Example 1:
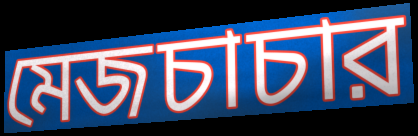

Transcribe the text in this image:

মেজচাচার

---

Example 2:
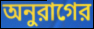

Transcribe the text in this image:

অনুরাগের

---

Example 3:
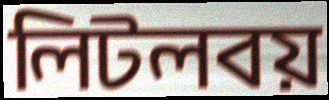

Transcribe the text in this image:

লিটলবয়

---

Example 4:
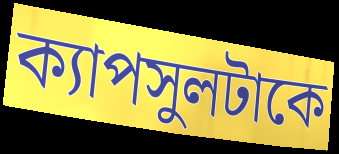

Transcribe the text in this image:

ক্যাপসুলটাকে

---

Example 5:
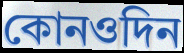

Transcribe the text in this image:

কোনওদিন